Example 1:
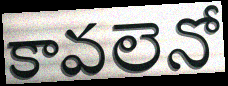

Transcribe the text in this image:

కావలెనో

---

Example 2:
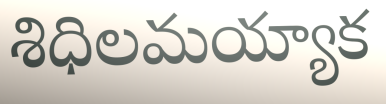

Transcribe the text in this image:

శిధిలమయ్యాక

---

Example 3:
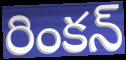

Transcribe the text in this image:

రింకన్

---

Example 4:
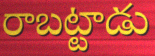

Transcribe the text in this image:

రాబట్టాడు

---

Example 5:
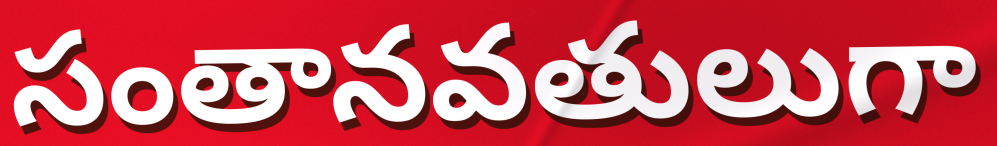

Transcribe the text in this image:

సంతానవతులుగా